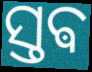
ସ୍ତଵ